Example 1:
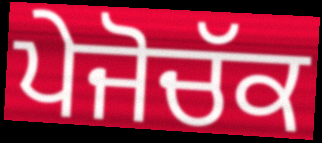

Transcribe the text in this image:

ਪੇਜੋਚੱਕ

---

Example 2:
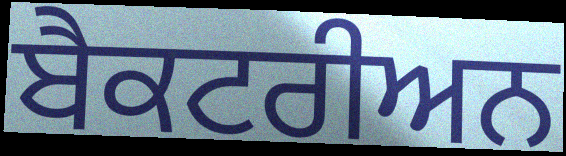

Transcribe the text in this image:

ਬੈਕਟਰੀਅਨ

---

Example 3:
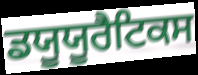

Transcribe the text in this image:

ਡਯੂਯੂਰੈਟਿਕਸ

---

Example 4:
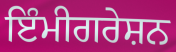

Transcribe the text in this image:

ਇੰਮੀਗਰੇਸ਼ਨ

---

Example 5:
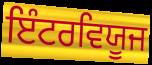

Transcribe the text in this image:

ਇੰਟਰਵਿਯੂਜ